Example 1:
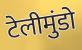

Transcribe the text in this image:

टेलीमुंडो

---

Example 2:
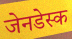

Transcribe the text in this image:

जेनडेस्क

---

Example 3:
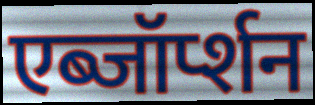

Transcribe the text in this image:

एब्जॉर्प्शन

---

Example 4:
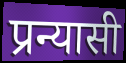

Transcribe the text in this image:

प्रन्यासी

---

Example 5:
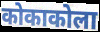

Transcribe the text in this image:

कोकाकोला